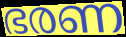
ഭരണ